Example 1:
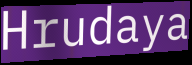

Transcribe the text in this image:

Hrudaya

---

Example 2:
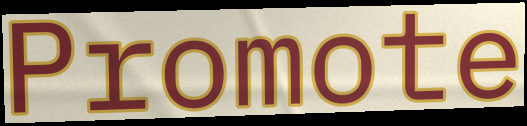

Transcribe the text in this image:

Promote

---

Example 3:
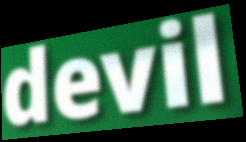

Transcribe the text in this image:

devil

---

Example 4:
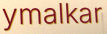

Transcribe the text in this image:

ymalkar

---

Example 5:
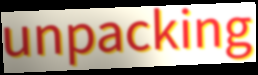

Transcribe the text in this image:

unpacking